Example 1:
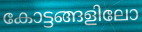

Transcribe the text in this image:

കോട്ടങ്ങളിലോ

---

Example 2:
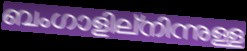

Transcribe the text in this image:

ബംഗാളില്നിന്നുള്ള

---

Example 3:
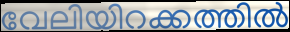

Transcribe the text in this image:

വേലിയിറക്കത്തിൽ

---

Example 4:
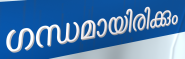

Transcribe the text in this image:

ഗന്ധമായിരിക്കും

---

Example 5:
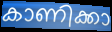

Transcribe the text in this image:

കാണിക്കാ